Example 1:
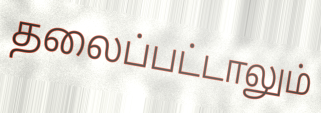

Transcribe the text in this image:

தலைப்பட்டாலும்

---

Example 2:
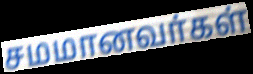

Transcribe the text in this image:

சமமானவர்கள்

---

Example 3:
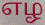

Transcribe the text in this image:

எழ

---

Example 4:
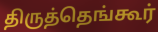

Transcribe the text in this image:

திருத்தெங்கூர்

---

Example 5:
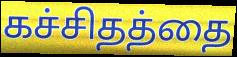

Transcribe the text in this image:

கச்சிதத்தை